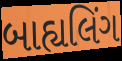
બાહ્યલિંગ